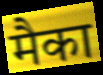
मैका